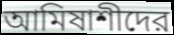
আমিষাশীদের